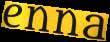
enna